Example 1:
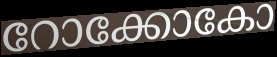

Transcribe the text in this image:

റോക്കോകോ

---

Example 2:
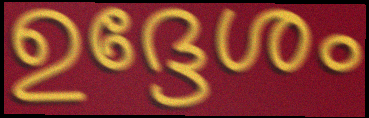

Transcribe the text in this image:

ഉദ്ദേശം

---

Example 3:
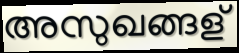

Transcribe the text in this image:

അസുഖങ്ങള്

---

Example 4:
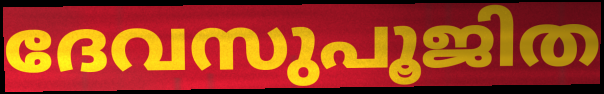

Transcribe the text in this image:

ദേവസുപൂജിത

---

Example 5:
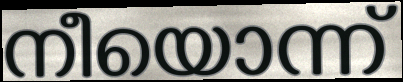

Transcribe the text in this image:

നീയൊന്ന്